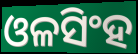
ଓଳସିଂହ